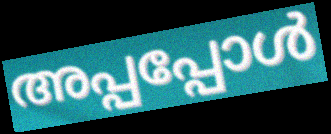
അപ്പപ്പോൾ